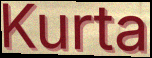
Kurta